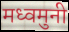
मध्वमुनी